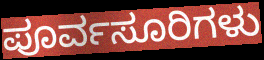
ಪೂರ್ವಸೂರಿಗಳು